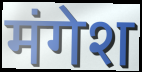
मंगेश